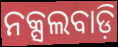
ନକ୍ସଲବାଡ଼ି